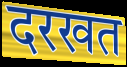
दरखत